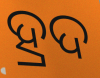
ହ୍ରଦ